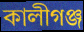
কালীগঞ্জ